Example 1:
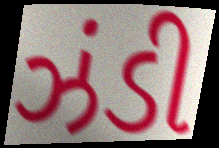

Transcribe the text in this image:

ઝંડી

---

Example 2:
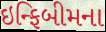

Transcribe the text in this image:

ઇન્ફિબીમના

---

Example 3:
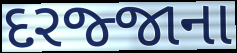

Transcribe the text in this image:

દરજ્જાના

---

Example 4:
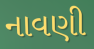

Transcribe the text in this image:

નાવણી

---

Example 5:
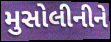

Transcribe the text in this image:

મુસોલીનીને